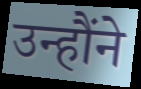
उन्हौंने